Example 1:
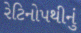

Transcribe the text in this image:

રેટિનોપથીનું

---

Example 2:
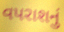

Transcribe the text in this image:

વપરાશનું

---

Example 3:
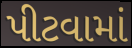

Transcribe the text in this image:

પીટવામાં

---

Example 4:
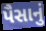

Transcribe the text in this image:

પૈસાનું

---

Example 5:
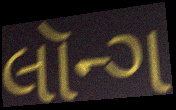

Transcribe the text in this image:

લૉન્ગ